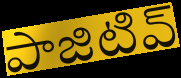
పాజిటివ్